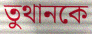
তুথানকে